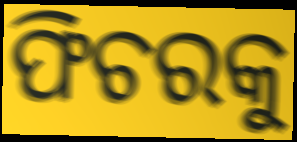
ଫିଚରକୁ